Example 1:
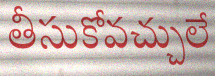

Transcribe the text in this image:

తీసుకోవచ్చులే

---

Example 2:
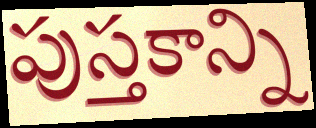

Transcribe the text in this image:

పుస్తకాన్ని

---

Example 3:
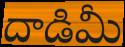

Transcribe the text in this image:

దాడిమీ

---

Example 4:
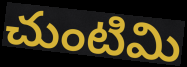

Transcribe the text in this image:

చుంటిమి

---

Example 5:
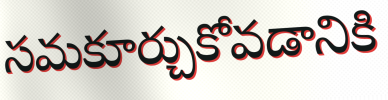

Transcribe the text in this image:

సమకూర్చుకోవడానికి